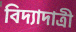
বিদ্যাদাত্রী